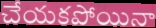
చేయకపోయినా